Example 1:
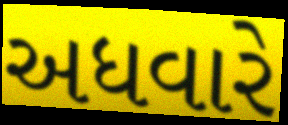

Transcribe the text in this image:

અધવારે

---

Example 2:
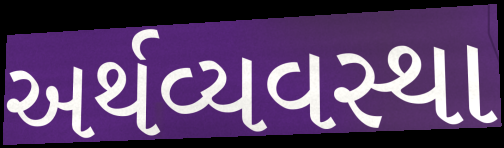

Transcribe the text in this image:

અર્થવ્યવસ્થા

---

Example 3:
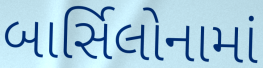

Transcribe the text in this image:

બાર્સિલોનામાં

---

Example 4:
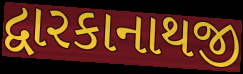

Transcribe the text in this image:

દ્વારકાનાથજી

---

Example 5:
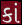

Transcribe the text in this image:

કાં